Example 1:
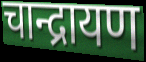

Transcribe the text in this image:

चान्द्रायण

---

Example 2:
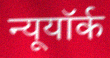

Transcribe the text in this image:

न्यूयॉर्क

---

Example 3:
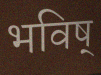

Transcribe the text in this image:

भविष्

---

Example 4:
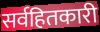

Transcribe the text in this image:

सर्वहितकारी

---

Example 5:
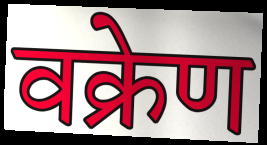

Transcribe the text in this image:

वक्रेण